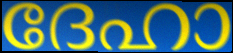
ദേഹാ